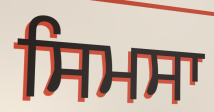
ਸਿਮਸਾ